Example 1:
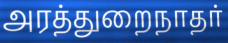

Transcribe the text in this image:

அரத்துறைநாதர்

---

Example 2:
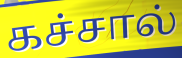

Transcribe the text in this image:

கச்சால்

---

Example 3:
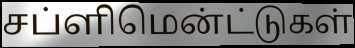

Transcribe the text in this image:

சப்ளிமென்ட்டுகள்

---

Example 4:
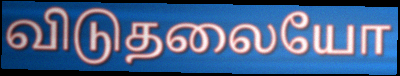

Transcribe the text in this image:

விடுதலையோ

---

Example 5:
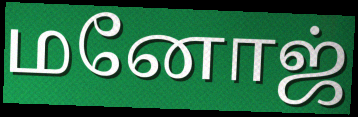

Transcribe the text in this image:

மனோஜ்